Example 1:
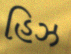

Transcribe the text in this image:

હિઝ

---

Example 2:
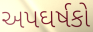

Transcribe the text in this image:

અપઘર્ષકો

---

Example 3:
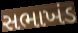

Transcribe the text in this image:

સભાખંડ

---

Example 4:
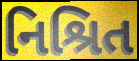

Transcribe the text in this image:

નિશ્રિત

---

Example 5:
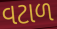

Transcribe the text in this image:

વટાળ